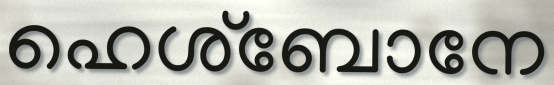
ഹെശ്ബോനേ